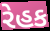
રેહક